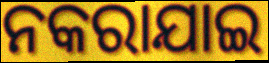
ନକରାଯାଇ